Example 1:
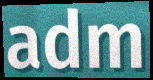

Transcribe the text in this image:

adm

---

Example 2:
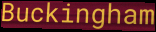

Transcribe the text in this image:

Buckingham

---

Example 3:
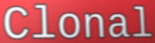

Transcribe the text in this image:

Clonal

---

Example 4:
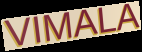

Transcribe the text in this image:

VIMALA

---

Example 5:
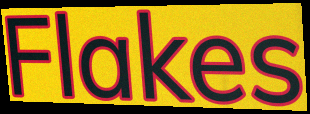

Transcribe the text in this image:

Flakes